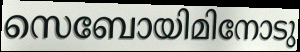
സെബോയിമിനോടു